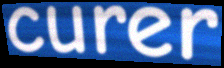
curer